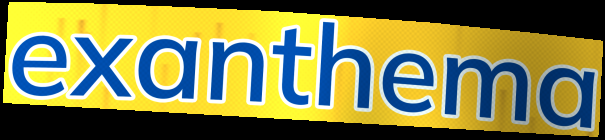
exanthema